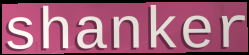
shanker